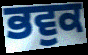
ਭਵੁਕ